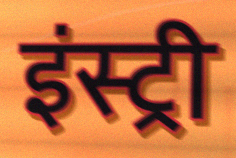
इंस्ट्री